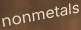
nonmetals